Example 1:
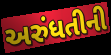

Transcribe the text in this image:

અરુંધતીની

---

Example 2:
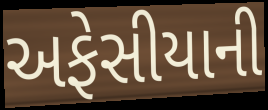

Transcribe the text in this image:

અફેસીયાની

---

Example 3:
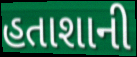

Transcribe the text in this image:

હતાશાની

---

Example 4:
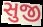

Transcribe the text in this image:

સુજી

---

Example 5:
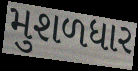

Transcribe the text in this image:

મુશળધાર